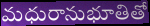
మధురానుభూతితో